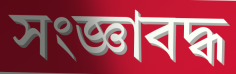
সংজ্ঞাবদ্ধ